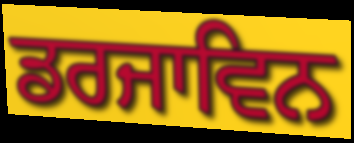
ਡਰਜਾਵਿਨ